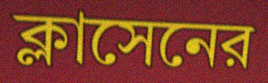
ক্লাসেনের